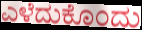
ಎಳೆದುಕೊಂದು